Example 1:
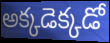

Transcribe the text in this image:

అక్కడెక్కడో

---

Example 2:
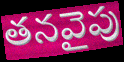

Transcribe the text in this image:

తనవైపు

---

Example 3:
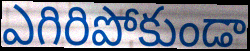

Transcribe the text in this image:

ఎగిరిపోకుండా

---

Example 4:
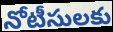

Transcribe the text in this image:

నోటీసులకు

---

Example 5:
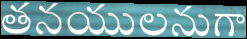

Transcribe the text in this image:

తనయులనుగా